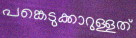
പങ്കെടുക്കാറുള്ളത്